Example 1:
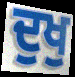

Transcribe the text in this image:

ਦੁਖੁ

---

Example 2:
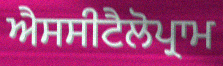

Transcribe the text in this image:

ਐਸਸੀਟੈਲੋਪ੍ਰਾਮ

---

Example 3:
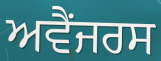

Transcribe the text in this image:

ਅਵੈਂਜਰਸ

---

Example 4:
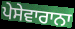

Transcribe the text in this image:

ਪੇਸੇਵਾਰਾਨਾ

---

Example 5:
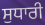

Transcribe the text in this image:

ਸੁਧਾਰੀ